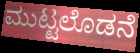
ಮುಟ್ಟಲೊಡನೆ